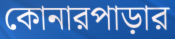
কোনারপাড়ার